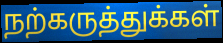
நற்கருத்துக்கள்